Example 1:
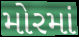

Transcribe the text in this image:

મોરમાં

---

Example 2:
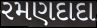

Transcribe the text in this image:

રમણદાદા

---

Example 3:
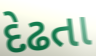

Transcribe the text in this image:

દેઢતા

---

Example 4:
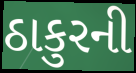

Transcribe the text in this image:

ઠાકુરની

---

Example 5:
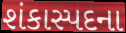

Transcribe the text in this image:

શંકાસ્પદના